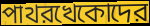
পাথরখেকোদের